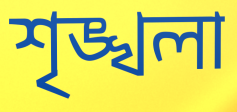
শৃঙ্খলা